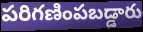
పరిగణింపబడ్డారు